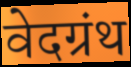
वेदग्रंथ